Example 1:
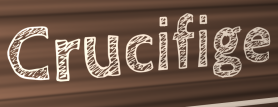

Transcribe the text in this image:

Crucifige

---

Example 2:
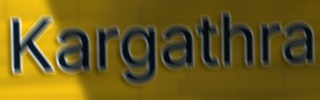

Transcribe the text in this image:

Kargathra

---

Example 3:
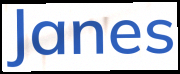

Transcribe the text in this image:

Janes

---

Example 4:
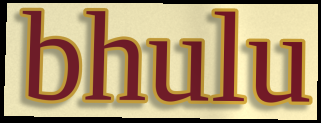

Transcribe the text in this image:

bhulu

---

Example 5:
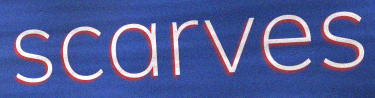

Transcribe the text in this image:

scarves